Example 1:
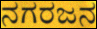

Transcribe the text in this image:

ನಗರಜನ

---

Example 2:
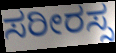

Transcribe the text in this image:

ಸರೀರಸ್ಸ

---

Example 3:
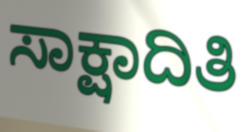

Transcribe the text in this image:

ಸಾಕ್ಷಾದಿತಿ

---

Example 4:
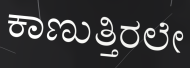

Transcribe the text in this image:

ಕಾಣುತ್ತಿರಲೇ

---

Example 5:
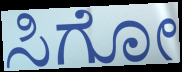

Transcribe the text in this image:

ಸಿಗೋ